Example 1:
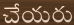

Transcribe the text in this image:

చేయరు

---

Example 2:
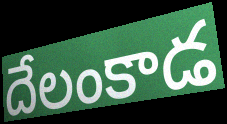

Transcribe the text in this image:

దేలంకాడ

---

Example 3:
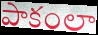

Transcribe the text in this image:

పాకంలా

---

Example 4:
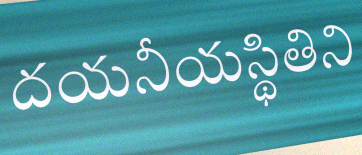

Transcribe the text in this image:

దయనీయస్థితిని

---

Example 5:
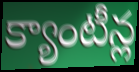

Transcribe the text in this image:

క్యాంటీన్ల